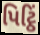
પિટ્ઠિં